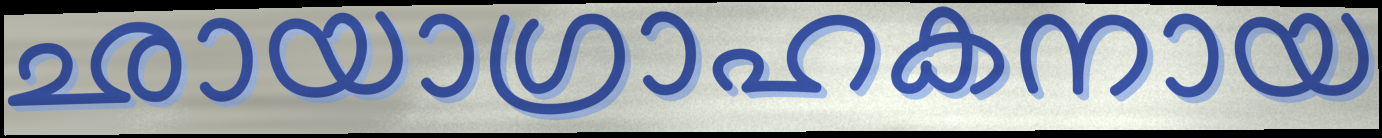
ഛായാഗ്രാഹകനായ